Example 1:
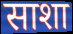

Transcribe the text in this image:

साशा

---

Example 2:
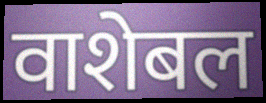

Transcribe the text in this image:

वाशेबल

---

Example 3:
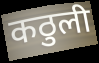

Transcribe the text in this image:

कठुली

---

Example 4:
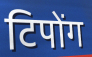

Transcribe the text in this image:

टिपोंग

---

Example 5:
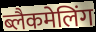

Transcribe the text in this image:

ब्लैकमेलिंग